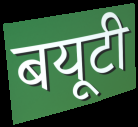
बयूटी